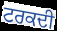
ਟਰਕਦੀ